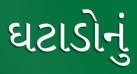
ઘટાડોનું